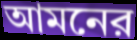
আমনের